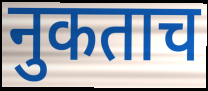
नुकताच